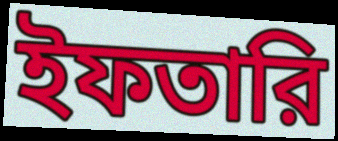
ইফতারি